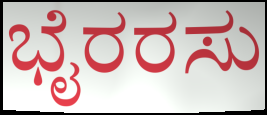
ಭೈರರಸು